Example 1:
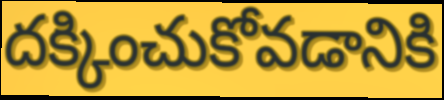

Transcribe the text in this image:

దక్కించుకోవడానికి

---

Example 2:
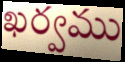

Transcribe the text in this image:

ఖర్వము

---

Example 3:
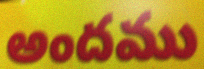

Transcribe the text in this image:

అందము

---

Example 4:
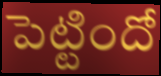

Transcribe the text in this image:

పెట్టిందో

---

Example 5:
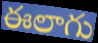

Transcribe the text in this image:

ఈలాగు